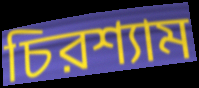
চিরশ্যাম